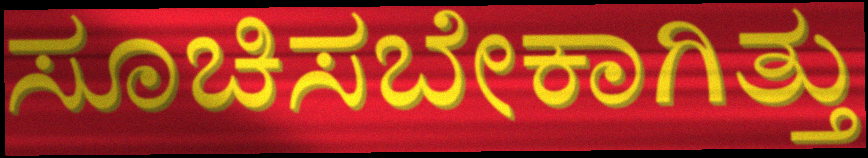
ಸೂಚಿಸಬೇಕಾಗಿತ್ತು